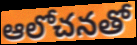
ఆలోచనతో